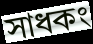
সাধকং